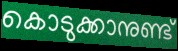
കൊടുക്കാനുണ്ട്